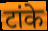
टांके